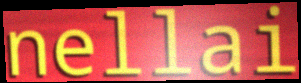
nellai